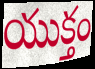
యుక్తం